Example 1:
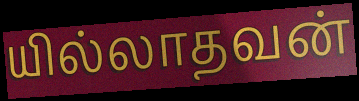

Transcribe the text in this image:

யில்லாதவன்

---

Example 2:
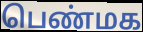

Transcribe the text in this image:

பெண்மக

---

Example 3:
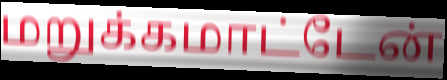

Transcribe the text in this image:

மறுக்கமாட்டேன்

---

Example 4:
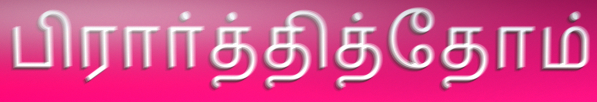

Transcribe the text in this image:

பிரார்த்தித்தோம்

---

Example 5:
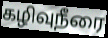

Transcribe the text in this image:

கழிவுநீரை